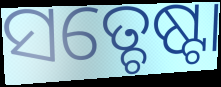
ସତ୍ଚେଷ୍ଟା